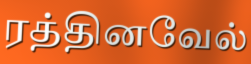
ரத்தினவேல்